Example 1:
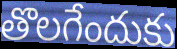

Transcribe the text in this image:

తొలగేందుకు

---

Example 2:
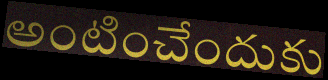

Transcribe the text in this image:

అంటించేందుకు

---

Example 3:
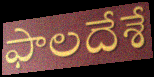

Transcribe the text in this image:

ఫాలదేశే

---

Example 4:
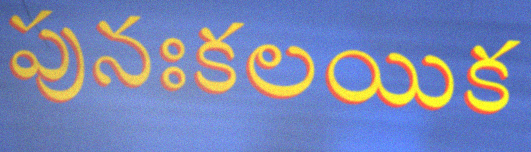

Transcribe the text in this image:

పునఃకలయిక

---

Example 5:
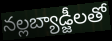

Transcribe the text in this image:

నల్లబ్యాడ్జీలతో